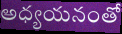
అధ్యయనంతో